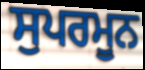
ਸੁਪਰਮੂਨ